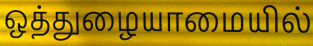
ஒத்துழையாமையில்